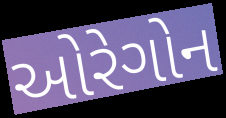
ઓરેગોન